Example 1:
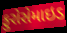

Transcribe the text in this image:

ફુરોસેમાઇડ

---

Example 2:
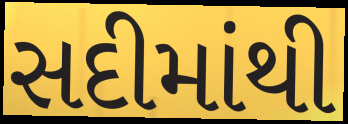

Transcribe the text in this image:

સદીમાંથી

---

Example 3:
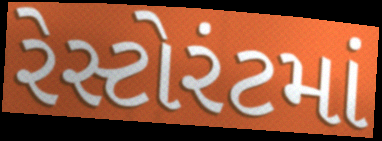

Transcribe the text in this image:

રેસ્ટોરંટમાં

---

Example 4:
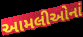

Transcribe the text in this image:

આમલીઓનાં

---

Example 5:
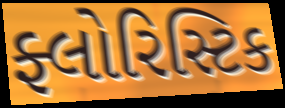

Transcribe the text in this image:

ફ્લોરિસ્ટિક